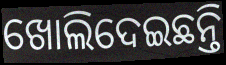
ଖୋଲିଦେଇଛନ୍ତି